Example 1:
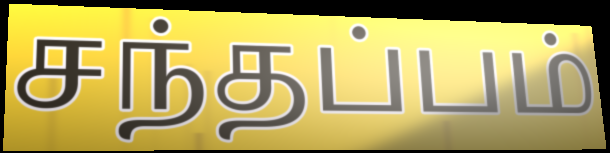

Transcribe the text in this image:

சந்தப்பம்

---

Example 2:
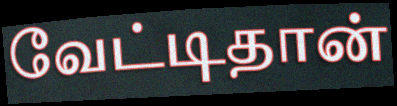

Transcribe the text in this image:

வேட்டிதான்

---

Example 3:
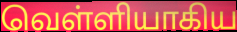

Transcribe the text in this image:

வெள்ளியாகிய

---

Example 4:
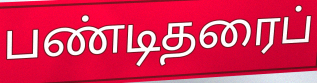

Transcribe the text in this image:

பண்டிதரைப்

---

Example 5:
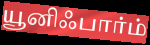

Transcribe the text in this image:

யூனிஃபார்ம்